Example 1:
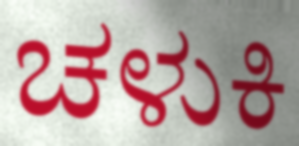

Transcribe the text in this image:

ಚಳುಕಿ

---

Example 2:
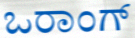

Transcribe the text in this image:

ಒರಾಂಗ್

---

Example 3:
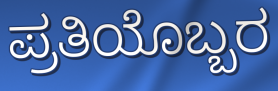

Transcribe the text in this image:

ಪ್ರತಿಯೊಬ್ಬರ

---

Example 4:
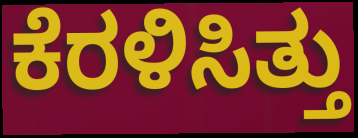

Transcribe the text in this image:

ಕೆರಳಿಸಿತ್ತು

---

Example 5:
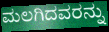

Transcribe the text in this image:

ಮಲಗಿದವರನ್ನು